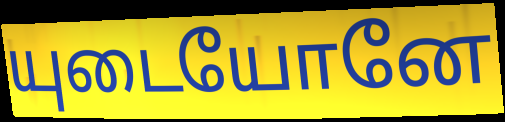
யுடையோனே